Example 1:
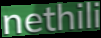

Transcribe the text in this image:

nethili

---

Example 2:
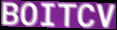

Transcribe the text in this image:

BOITCV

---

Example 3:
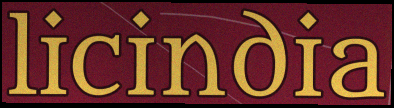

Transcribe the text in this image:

licindia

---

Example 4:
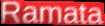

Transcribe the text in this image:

Ramata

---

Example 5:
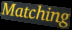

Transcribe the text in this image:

Matching